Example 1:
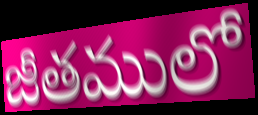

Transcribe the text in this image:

జీతములో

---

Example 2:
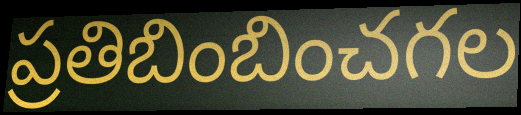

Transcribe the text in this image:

ప్రతిబింబించగల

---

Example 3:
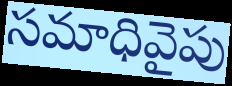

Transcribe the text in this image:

సమాధివైపు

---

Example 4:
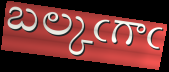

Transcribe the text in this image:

బల్కఁగాఁ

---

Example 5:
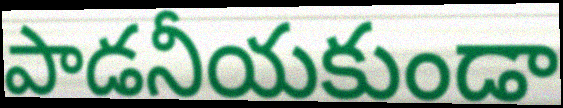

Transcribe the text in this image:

పాడనీయకుండా